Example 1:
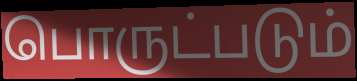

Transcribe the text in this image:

பொருட்படும்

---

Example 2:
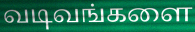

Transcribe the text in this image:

வடிவங்களை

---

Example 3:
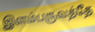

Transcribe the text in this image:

இளம்பருவத்தே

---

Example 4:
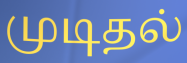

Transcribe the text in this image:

முடிதல்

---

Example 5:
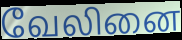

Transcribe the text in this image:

வேலினை